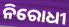
ନିରୋଧୀ